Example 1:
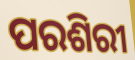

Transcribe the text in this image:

ପରଶିରୀ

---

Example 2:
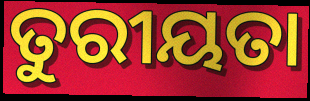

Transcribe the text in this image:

ତୁରୀୟତା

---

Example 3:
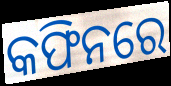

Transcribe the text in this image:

କଫିନରେ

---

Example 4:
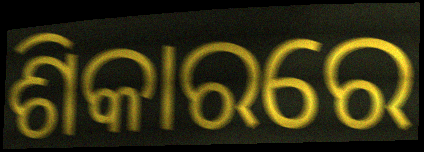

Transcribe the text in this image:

ଶିକାରରେ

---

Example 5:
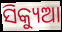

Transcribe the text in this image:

ସିକ୍ୟୁଆ